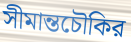
সীমান্তচৌকির